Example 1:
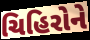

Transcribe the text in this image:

ચિહિરોને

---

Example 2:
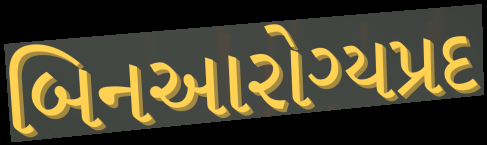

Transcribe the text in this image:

બિનઆરોગ્યપ્રદ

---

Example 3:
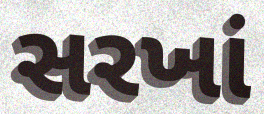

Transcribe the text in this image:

સરખાં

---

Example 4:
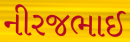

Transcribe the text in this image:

નીરજભાઈ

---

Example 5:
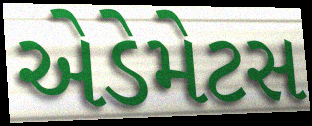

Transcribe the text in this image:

એડેમેટસ